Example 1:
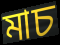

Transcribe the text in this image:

মাচ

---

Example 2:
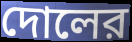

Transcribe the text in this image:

দোলের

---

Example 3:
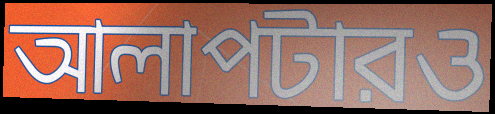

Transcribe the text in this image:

আলাপটারও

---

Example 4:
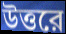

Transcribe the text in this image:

উত্তরে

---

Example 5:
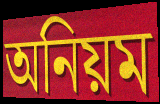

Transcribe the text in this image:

অনিয়ম